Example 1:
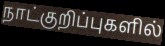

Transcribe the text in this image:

நாட்குறிப்புகளில்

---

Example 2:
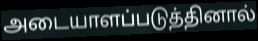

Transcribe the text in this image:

அடையாளப்படுத்தினால்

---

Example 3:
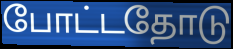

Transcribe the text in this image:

போட்டதோடு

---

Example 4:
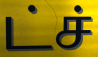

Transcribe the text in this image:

ட்ச்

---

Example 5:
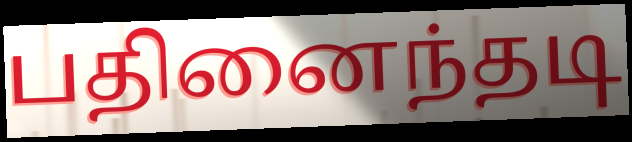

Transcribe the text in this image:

பதினைந்தடி